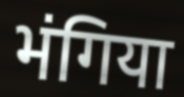
भंगिया